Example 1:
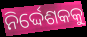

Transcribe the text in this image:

ନିର୍ଦ୍ଦେଶକକୁ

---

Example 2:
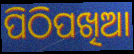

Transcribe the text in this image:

ପିଠିପଖିଆ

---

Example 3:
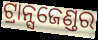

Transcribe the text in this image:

ଟ୍ରାନ୍ସଜେଣ୍ଡର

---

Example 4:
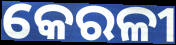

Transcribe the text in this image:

କେରଳୀ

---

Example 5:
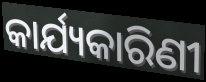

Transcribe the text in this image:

କାର୍ଯ୍ୟକାରିଣୀ